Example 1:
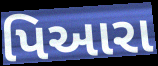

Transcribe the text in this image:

પિઆરા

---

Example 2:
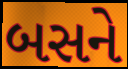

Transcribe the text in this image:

બસને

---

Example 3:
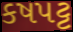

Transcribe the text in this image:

કષપટ્ટ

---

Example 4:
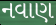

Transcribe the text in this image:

નવાણ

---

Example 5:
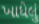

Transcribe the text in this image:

ખાધેલું